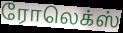
ரோலெக்ஸ்